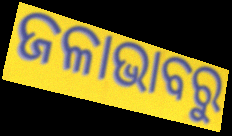
ଜଳାଭାବରୁ